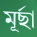
মূর্ছা